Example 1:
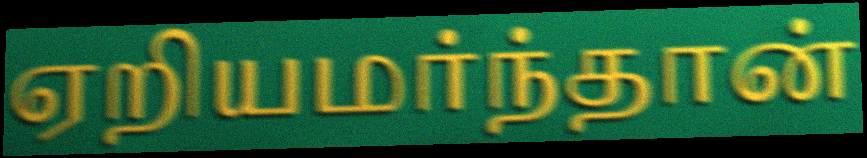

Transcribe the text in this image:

ஏறியமர்ந்தான்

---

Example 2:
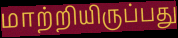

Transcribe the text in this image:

மாற்றியிருப்பது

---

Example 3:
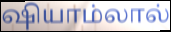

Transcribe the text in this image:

ஷியாம்லால்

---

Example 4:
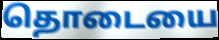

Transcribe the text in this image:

தொடையை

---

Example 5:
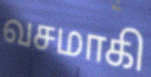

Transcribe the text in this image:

வசமாகி